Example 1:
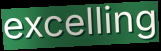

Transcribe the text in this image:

excelling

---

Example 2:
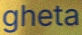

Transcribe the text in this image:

gheta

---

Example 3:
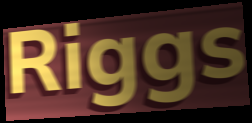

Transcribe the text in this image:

Riggs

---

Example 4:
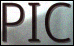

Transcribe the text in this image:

PIC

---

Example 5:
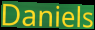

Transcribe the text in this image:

Daniels